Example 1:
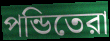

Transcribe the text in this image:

পন্ডিতেরা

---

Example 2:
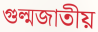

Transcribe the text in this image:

গুল্মজাতীয়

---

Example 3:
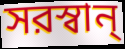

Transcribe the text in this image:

সরস্বান্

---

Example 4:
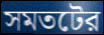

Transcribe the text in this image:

সমতটের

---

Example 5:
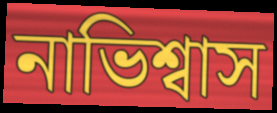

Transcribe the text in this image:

নাভিশ্বাস